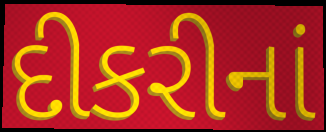
દીકરીનાં